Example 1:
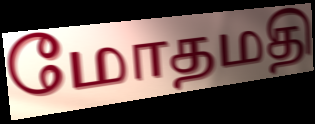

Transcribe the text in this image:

மோதமதி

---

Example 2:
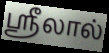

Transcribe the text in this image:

ஸ்ரீலால்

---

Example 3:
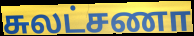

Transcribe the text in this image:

சுலட்சணா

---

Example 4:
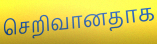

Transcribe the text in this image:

செறிவானதாக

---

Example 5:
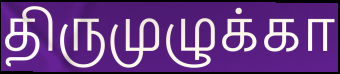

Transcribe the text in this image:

திருமுழுக்கா